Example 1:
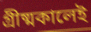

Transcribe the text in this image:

গ্রীষ্মকালেই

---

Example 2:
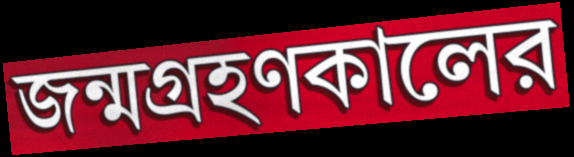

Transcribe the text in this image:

জন্মগ্রহণকালের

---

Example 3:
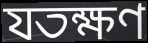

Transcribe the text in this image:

যতক্ষণ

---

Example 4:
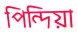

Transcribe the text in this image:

পিন্দিয়া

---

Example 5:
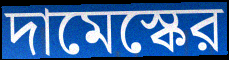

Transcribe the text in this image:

দামেস্কের